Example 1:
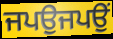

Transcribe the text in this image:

ਜਪਉਜਪਉਂ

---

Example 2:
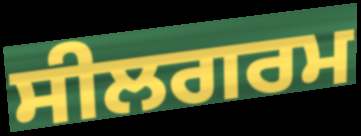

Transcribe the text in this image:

ਸੀਲਗਰਮ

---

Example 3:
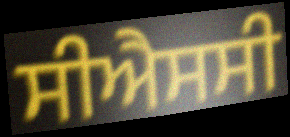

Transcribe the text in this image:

ਸੀਐਸਸੀ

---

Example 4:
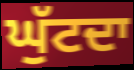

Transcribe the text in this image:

ਘੁੱਟਦਾ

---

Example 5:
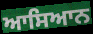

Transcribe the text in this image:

ਆਸਿਆਨ